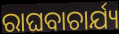
ରାଘବାଚାର୍ଯ୍ୟ